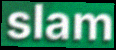
slam